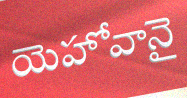
యెహోవానై